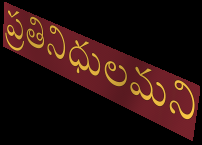
ప్రతినిధులమని